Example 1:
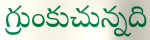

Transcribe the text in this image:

గ్రుంకుచున్నది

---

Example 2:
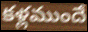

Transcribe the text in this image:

కళ్లముందే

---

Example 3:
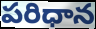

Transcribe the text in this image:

పరిధాన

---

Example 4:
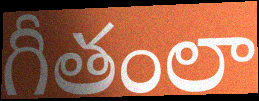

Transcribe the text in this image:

గీతంలా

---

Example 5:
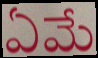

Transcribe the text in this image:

ఏమే